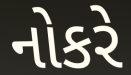
નોકરે